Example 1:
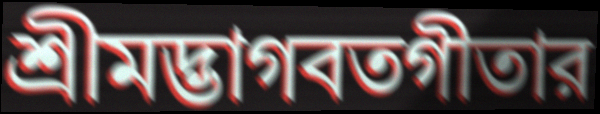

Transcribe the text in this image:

শ্রীমদ্ভাগবতগীতার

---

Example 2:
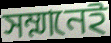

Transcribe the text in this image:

সম্মানেই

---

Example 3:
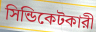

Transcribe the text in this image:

সিন্ডিকেটকারী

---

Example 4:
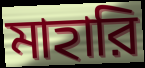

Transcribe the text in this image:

মাহারি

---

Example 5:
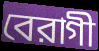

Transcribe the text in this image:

বেরাগী